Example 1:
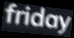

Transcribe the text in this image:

friday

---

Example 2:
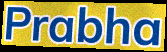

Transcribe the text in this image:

Prabha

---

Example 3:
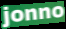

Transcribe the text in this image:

jonno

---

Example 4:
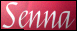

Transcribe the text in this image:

Senna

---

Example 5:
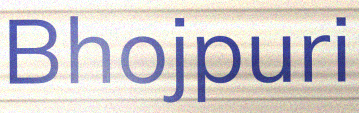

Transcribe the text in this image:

Bhojpuri